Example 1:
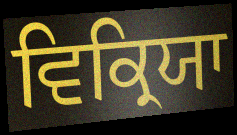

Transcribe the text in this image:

ਵਿਕ੍ਰਿਯਾ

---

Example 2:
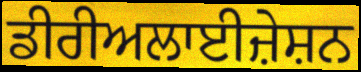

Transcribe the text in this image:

ਡੀਰੀਅਲਾਈਜ਼ੇਸ਼ਨ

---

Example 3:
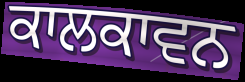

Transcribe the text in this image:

ਕਾਲਕਾਵਨ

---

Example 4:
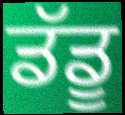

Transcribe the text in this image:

ਡੱਡੂ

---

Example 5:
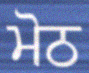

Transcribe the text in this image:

ਮੋਠ